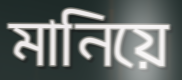
মানিয়ে